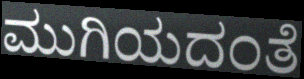
ಮುಗಿಯದಂತೆ